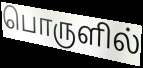
பொருளில்